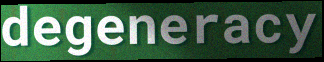
degeneracy